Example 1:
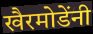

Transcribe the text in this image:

खैरमोडेंनी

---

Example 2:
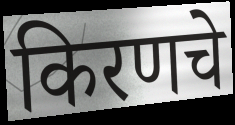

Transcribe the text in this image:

किरणचे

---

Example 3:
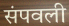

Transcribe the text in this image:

संपवली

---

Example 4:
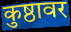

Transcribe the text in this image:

कुष्ठावर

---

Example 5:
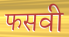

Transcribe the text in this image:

फसवी